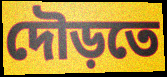
দৌড়তে